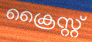
ക്രൈസ്റ്റ്